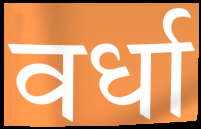
वर्धा